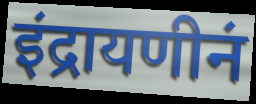
इंद्रायणीनं